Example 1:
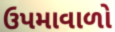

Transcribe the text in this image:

ઉપમાવાળો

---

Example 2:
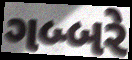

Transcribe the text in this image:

ગબ્બરે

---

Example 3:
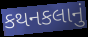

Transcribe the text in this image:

કથનકલાનું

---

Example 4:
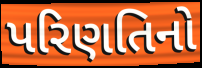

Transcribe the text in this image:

પરિણતિનો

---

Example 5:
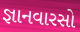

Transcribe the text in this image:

જ્ઞાનવારસો